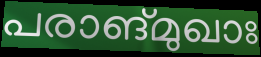
പരാങ്മുഖാഃ